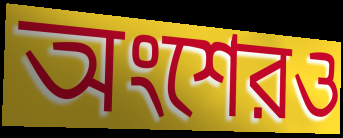
অংশেরও